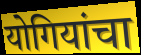
योगियांचा